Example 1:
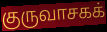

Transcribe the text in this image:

குருவாசகக்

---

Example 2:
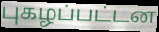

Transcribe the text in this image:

புகழப்பட்டன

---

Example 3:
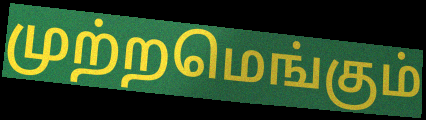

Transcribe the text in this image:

முற்றமெங்கும்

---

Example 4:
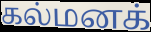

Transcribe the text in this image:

கல்மனக்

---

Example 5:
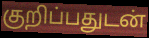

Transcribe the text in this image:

குறிப்பதுடன்